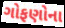
ગોફણોના